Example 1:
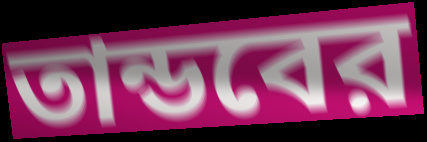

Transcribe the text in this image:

তান্ডবের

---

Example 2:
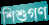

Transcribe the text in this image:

শিশুগণ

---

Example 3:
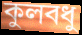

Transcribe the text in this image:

কুলবধু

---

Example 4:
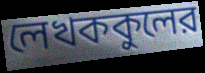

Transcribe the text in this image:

লেখককুলের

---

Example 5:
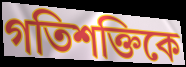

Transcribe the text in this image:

গতিশক্তিকে